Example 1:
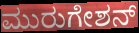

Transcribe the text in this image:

ಮುರುಗೇಶನ್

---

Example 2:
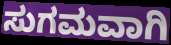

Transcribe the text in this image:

ಸುಗಮವಾಗಿ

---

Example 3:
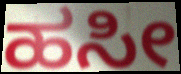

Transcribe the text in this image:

ಹಸೀ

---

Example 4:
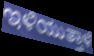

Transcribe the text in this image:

ಇಳಿಯುತ್ತಾಳೆ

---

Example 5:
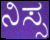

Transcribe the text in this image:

ನಿಸ್ಸ